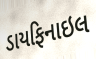
ડાયફિનાઇલ